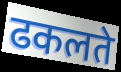
ढकलते